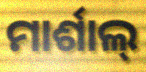
ମାର୍ଶାଲ୍